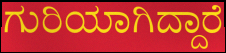
ಗುರಿಯಾಗಿದ್ದಾರೆ